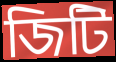
জিটি